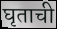
घृताची